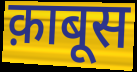
क़ाबूस